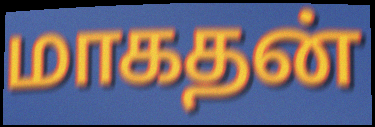
மாகதன்